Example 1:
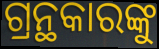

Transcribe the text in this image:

ଗ୍ରନ୍ଥକାରଙ୍କୁ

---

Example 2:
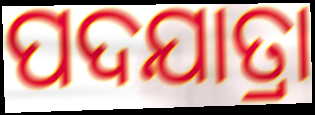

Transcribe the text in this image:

ପଦଯାତ୍ରା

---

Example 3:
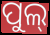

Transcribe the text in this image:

ପୁଲ୍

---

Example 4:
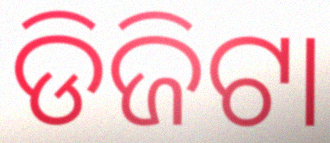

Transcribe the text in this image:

ଡିଜିଟା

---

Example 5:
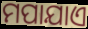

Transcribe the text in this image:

ମପାଯାଏ